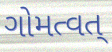
ગોમત્વત્